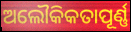
ଅଲୌକିକତାପୂର୍ଣ୍ଣ